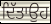
ਦਿੱਤਾਉਹ